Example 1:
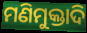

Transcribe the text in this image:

ମଣିମୁକ୍ତାଦି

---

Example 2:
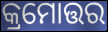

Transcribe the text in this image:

କ୍ରମୋତ୍ତର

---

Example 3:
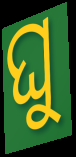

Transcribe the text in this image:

ଘୁ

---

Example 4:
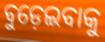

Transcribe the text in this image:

ବୁଡ଼େଇବାକୁ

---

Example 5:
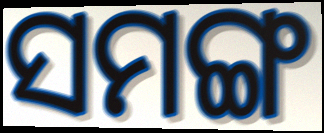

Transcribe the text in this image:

ସମଙ୍ଗ